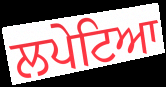
ਲਪੇਟਿਆ